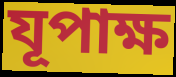
যূপাক্ষ